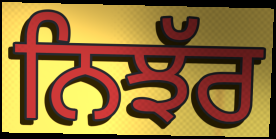
ਨਿਝੱਰ